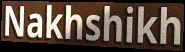
Nakhshikh